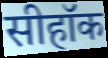
सीहॉक